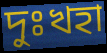
দুঃখহা